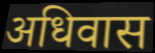
अधिवास